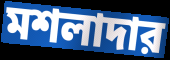
মশলাদার